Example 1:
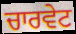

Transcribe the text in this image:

ਚਾਰਵੇਟ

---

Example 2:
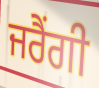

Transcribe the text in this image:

ਜਰੈਂਗੀ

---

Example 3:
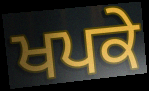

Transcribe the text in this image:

ਖਪਕੇ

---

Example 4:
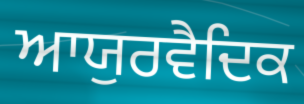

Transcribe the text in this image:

ਆਯੁਰਵੈਦਿਕ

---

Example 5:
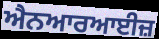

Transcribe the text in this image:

ਐਨਆਰਆਈਜ਼